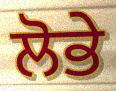
ਲੋਭੇ